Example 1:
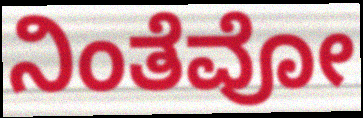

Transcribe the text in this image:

ನಿಂತೆವೋ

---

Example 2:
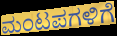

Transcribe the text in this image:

ಮಂಟಪಗಳಿಗೆ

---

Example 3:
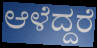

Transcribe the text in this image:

ಆಳೆದ್ದರೆ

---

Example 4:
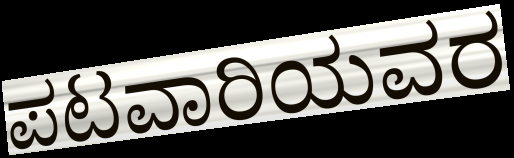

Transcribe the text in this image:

ಪಟವಾರಿಯವರ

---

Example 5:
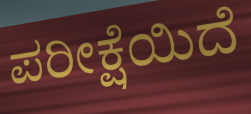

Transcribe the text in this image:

ಪರೀಕ್ಷೆಯಿದೆ